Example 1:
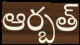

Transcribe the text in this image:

ఆర్బత్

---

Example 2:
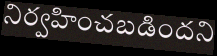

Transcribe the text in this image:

నిర్వహించబడిందని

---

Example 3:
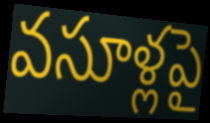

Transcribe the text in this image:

వసూళ్లపై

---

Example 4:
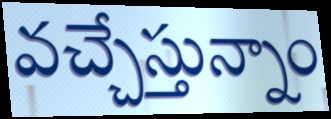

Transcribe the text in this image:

వచ్చేస్తున్నాం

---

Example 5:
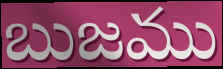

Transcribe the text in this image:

బుజము